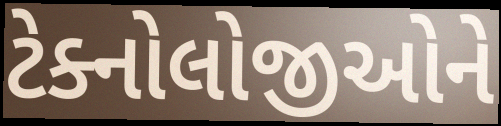
ટેક્નોલોજીઓને